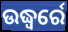
ଉଦ୍ଧ୍ୱର୍ରେ